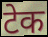
टेक